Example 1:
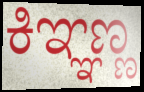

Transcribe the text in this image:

ಕಿಞ್ಞಣ್ಣ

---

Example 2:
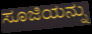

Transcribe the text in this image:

ಸೂಜಿಯನ್ನು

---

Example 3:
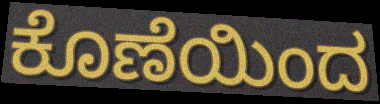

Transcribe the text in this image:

ಕೊಣೆಯಿಂದ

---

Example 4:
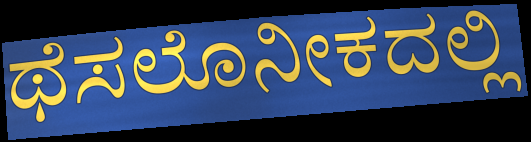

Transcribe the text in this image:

ಥೆಸಲೊನೀಕದಲ್ಲಿ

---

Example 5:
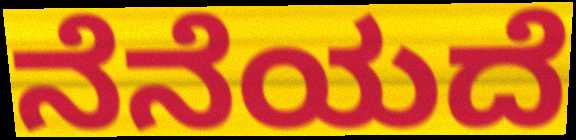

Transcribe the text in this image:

ನೆನೆಯದೆ